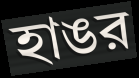
হাঙর